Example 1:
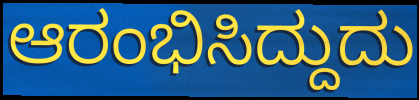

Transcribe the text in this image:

ಆರಂಭಿಸಿದ್ದುದು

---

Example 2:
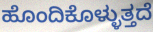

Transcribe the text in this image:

ಹೊಂದಿಕೊಳ್ಳುತ್ತದೆ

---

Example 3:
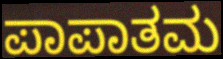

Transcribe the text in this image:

ಪಾಪಾತಮ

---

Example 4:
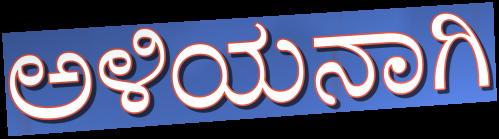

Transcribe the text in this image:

ಅಳಿಯನಾಗಿ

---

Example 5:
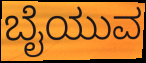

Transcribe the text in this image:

ಬೈಯುವ